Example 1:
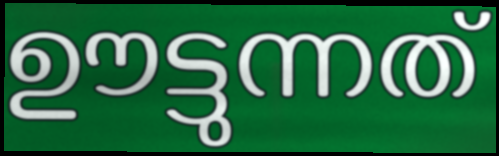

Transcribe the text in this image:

ഊട്ടുന്നത്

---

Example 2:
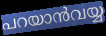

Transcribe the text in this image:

പറയാൻവയ്യ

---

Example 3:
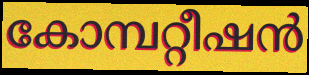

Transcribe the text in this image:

കോമ്പറ്റീഷൻ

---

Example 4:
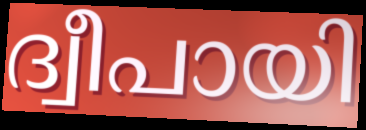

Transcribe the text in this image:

ദ്വീപായി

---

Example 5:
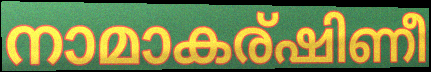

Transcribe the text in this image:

നാമാകര്ഷിണീ